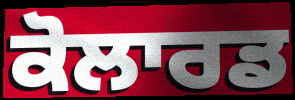
ਕੋਲਾਰਡ